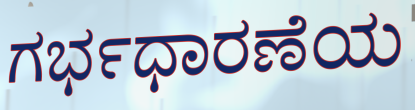
ಗರ್ಭಧಾರಣೆಯ